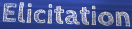
Elicitation